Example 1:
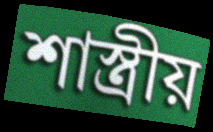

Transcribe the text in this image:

শাস্ত্রীয়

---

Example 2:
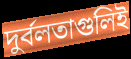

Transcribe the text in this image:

দুর্বলতাগুলিই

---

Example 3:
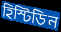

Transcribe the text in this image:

হিস্টিডিন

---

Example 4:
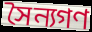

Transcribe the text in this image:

সৈন্যগণ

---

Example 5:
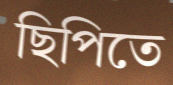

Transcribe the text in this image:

ছিপিতে